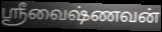
ஸ்ரீவைஷ்ணவன்